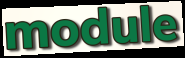
module